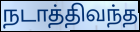
நடாத்திவந்த